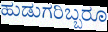
ಹುಡುಗರಿಬ್ಬರೂ